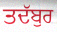
ਤਦੱਬੁਰ